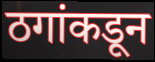
ठगांकडून